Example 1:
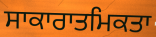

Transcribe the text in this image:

ਸਾਕਾਰਾਤਮਿਕਤਾ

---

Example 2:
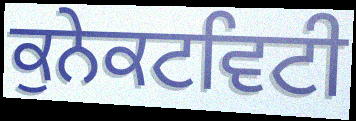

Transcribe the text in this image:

ਕੁਨੇਕਟਵਿਟੀ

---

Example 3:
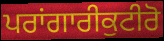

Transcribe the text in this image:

ਪਰਾਂਗਾਰੀਕੁਟੀਰੋ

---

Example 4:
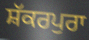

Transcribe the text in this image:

ਸ਼ੱਕਰਪੁਰਾ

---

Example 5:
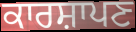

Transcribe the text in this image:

ਕਾਰਸ਼ਾਪਣ